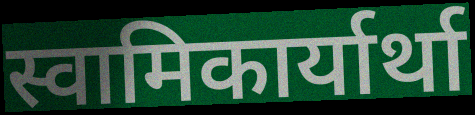
स्वामिकार्यार्था